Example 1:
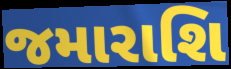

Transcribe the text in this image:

જમારાશિ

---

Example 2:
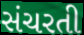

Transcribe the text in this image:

સંચરતી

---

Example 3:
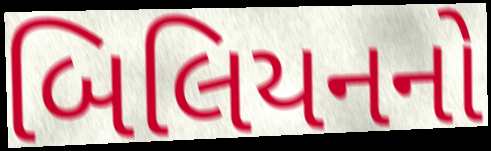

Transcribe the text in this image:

બિલિયનનો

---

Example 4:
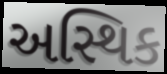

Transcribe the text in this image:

અસ્થિક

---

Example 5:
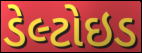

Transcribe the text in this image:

ડેલ્ટોઇડ